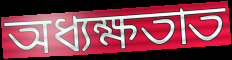
অধ্যক্ষতাত